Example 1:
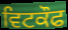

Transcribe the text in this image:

ਵਿਟਕੌਫ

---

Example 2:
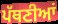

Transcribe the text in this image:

ਪੱਥਣੀਆਂ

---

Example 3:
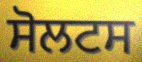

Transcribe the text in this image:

ਸੋਲਟਸ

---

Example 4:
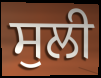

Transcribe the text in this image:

ਸੁਲੀ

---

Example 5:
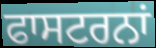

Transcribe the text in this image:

ਫਾਸਟਰਨਾਂ